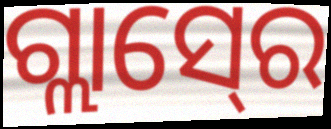
ଗ୍ଲାସ୍‍ରେ